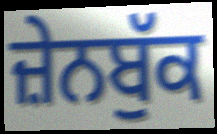
ਜ਼ੇਨਬੁੱਕ